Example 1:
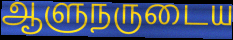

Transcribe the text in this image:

ஆளுநருடைய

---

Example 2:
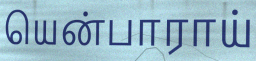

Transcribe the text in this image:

யென்பாராய்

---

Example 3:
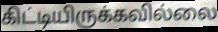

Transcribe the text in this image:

கிட்டியிருக்கவில்லை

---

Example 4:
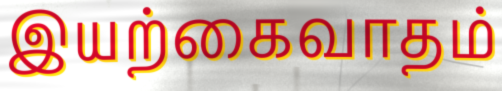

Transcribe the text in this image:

இயற்கைவாதம்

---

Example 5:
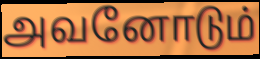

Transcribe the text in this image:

அவனோடும்